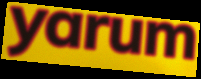
yarum